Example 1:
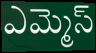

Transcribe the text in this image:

ఎమ్మెస్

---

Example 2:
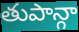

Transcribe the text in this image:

తుపాన్గా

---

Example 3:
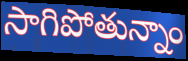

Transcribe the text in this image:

సాగిపోతున్నాం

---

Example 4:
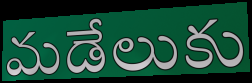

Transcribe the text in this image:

మడేలుకు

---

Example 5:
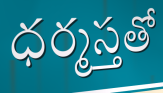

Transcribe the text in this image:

ధర్మస్తతో